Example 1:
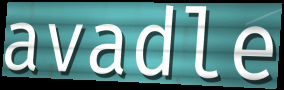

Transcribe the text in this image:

avadle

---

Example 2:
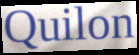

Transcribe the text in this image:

Quilon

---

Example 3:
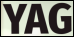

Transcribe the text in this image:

YAG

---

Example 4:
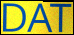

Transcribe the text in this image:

DAT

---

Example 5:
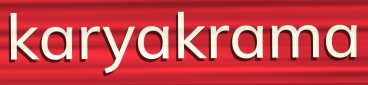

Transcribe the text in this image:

karyakrama